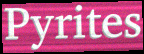
Pyrites